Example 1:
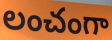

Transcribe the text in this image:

లంచంగా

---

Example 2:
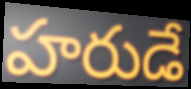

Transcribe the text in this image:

హరుడే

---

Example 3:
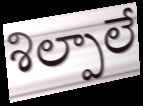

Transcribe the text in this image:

శిల్పాలే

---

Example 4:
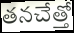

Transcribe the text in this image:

తనచేత్తో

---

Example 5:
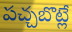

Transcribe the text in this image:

పచ్చబొట్లే